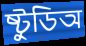
ষ্টুডিঅ